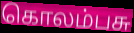
கொலம்பசு